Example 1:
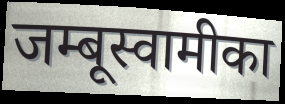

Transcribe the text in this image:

जम्बूस्वामीका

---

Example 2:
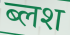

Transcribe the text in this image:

ब्लश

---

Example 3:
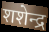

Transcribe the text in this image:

शशेन्द्र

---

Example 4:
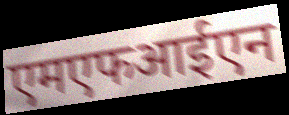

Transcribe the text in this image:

एमएफआईएन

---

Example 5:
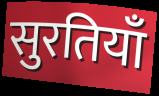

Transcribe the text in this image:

सुरतियाँ